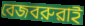
বেজবৰুৱাই